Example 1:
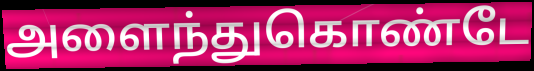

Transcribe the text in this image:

அளைந்துகொண்டே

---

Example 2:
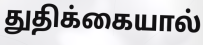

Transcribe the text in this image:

துதிக்கையால்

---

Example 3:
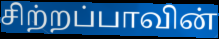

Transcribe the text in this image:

சிற்றப்பாவின்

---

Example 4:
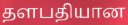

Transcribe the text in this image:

தளபதியான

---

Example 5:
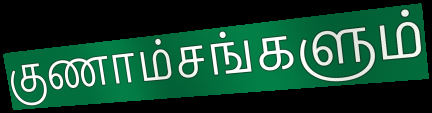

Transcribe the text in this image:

குணாம்சங்களும்